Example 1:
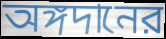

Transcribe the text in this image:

অঙ্গদানের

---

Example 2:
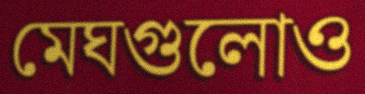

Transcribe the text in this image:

মেঘগুলোও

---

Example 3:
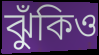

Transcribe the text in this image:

ঝুঁকিও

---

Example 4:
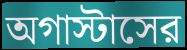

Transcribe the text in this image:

অগাস্টাসের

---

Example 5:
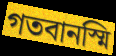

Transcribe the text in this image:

গতবানস্মি